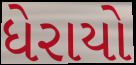
ધેરાયો